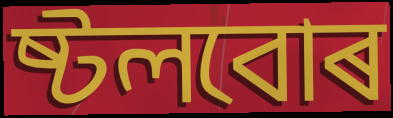
ষ্টলবোৰ